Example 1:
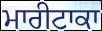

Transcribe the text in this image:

ਮਾਰੀਟਾਕਾ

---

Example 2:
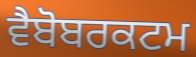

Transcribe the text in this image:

ਵੈਬੋਬਰਕਟਮ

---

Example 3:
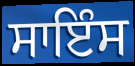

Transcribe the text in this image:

ਸਾਇੰਸ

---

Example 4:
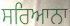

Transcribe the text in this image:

ਸਰਿਆਨਾ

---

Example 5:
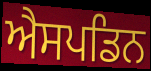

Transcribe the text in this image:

ਐਸਪਡਿਨ